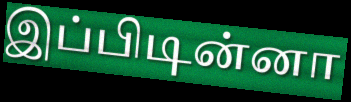
இப்பிடின்னா